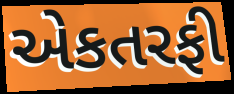
એકતરફી